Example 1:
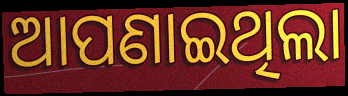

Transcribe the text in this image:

ଆପଣାଇଥିଲା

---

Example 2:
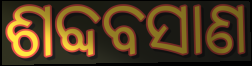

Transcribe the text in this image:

ଶବ୍ଦବସାଣ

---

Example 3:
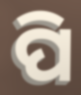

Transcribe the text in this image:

ପି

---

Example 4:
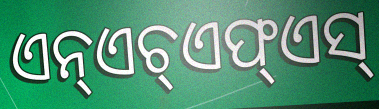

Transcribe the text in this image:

ଏନ୍ଏଚ୍ଏଫ୍ଏସ୍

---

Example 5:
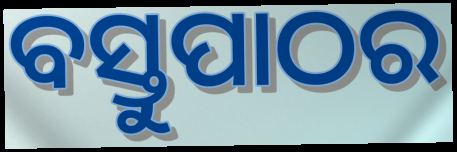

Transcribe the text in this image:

ବସ୍ତୁପାଠର